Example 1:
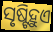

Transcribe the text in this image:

ସୃଷ୍ଟିହୁଏ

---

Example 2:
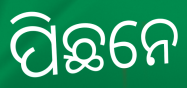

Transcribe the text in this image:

ପିଛନେ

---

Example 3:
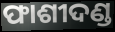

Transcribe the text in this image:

ଫାଶୀଦଣ୍ଡ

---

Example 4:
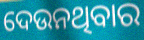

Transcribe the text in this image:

ଦେଉନଥିବାର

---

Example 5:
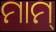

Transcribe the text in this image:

ମାମ୍